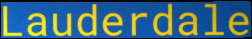
Lauderdale